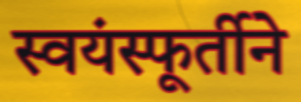
स्वयंस्फूर्तीने